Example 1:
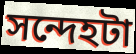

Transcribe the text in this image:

সন্দেহটা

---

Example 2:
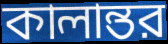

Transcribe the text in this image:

কালান্তর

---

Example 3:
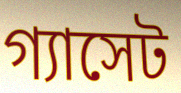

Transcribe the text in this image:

গ্যাসেট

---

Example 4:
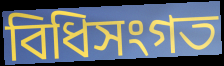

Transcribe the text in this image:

বিধিসংগত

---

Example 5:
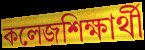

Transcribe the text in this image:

কলেজশিক্ষার্থী